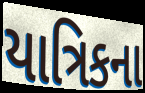
યાત્રિકના